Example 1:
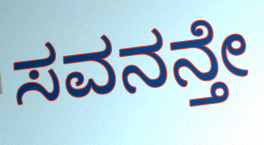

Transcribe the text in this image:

ಸವನನ್ತೇ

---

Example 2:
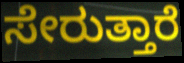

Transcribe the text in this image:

ಸೇರುತ್ತಾರೆ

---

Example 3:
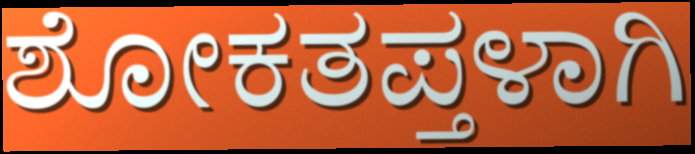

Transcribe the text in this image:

ಶೋಕತಪ್ತಳಾಗಿ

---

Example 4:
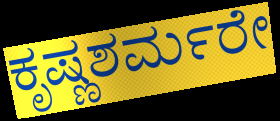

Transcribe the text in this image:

ಕೃಷ್ಣಶರ್ಮರೇ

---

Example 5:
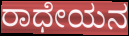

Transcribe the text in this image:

ರಾಧೇಯನ